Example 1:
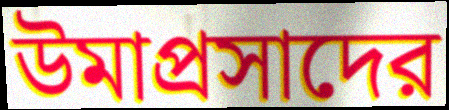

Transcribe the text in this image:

উমাপ্রসাদের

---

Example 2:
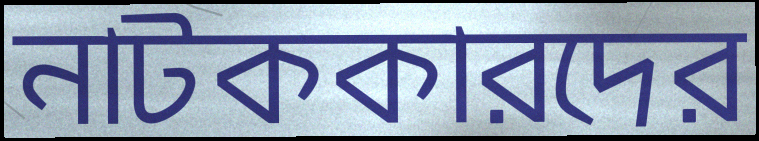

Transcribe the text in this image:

নাটককারদের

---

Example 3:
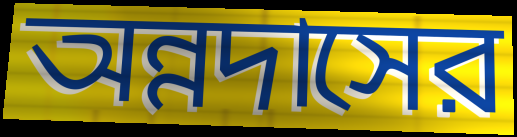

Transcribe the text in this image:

অন্নদাসের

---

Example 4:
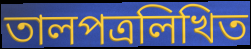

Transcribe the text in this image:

তালপত্রলিখিত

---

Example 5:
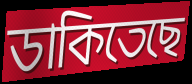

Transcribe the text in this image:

ডাকিতেছে